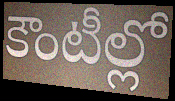
కౌంటీల్లో